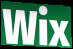
Wix